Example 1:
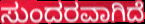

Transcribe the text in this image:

ಸುಂದರವಾಗಿದೆ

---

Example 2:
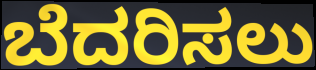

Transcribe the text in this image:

ಬೆದರಿಸಲು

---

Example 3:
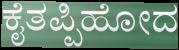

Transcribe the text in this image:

ಕೈತಪ್ಪಿಹೋದ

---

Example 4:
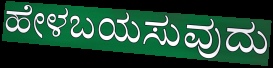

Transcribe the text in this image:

ಹೇಳಬಯಸುವುದು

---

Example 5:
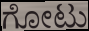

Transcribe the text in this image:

ಗೋಟು